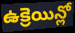
ఉక్రెయిన్లో